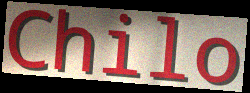
Chilo